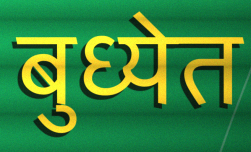
बुध्येत